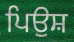
ਪਿਉਸ਼